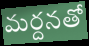
మర్దనతో